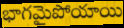
భాగమైపోయాయి